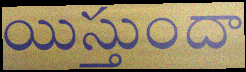
యిస్తుందా